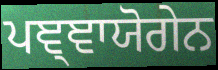
ਪਞ੍ਞਾਯੋਗੇਨ